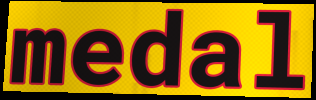
medal